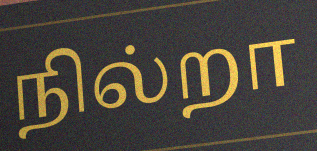
நில்றா